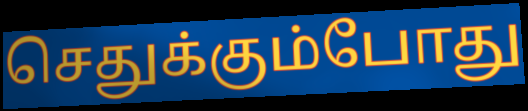
செதுக்கும்போது